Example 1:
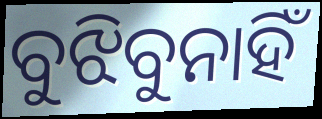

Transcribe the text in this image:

ବୁଝିବୁନାହିଁ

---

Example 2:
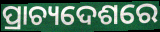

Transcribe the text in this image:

ପ୍ରାଚ୍ୟଦେଶରେ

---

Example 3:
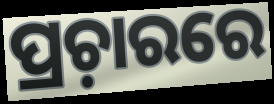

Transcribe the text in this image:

ପ୍ରଚ଼ାରରେ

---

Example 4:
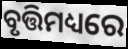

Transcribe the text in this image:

ବୃତ୍ତିମଧ୍ୟରେ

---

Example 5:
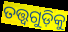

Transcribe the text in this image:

ତତ୍ତ୍ୱଗୁଡ଼ିକୁ